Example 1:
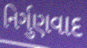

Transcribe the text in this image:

નિર્ગુણવાદ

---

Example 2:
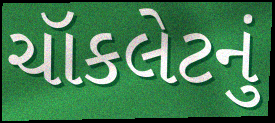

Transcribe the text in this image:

ચૉકલેટનું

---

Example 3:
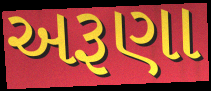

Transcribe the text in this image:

અરૂણા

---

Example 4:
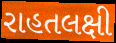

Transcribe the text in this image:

રાહતલક્ષી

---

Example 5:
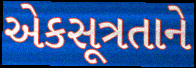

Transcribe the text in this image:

એકસૂત્રતાને